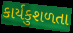
કાર્યકુશળતા